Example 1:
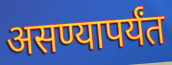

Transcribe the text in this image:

असण्यापर्यंत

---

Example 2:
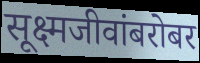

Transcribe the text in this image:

सूक्ष्मजीवांबरोबर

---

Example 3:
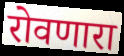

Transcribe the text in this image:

रोवणारा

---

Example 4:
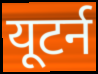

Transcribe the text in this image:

यूटर्न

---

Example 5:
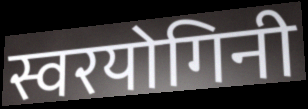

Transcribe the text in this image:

स्वरयोगिनी